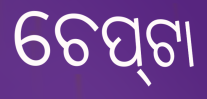
ଚେପ୍‌ଟା